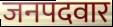
जनपदवार